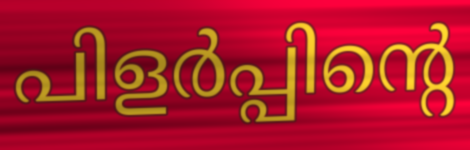
പിളർപ്പിന്റെ